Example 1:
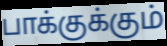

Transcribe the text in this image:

பாக்குக்கும்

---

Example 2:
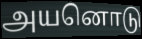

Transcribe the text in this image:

அயனொடு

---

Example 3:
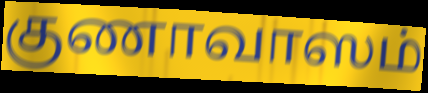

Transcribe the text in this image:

குணாவாஸம்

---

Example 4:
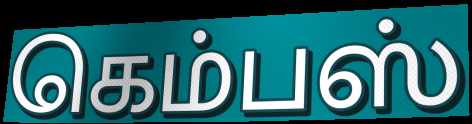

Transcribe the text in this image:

கெம்பஸ்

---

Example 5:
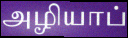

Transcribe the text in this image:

அழியாப்